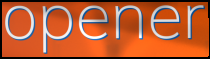
opener